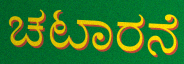
ಚಟಾರನೆ